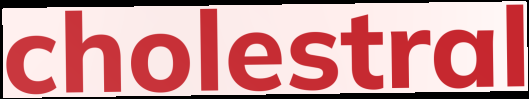
cholestral